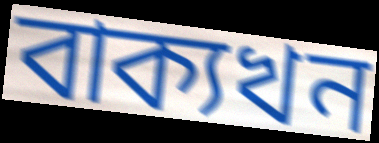
বাক্যখন